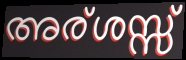
അര്ശസ്സ്